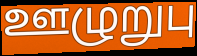
ஊழுறுபு